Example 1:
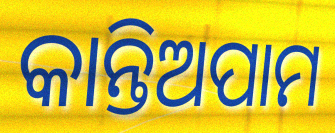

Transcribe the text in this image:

କାନ୍ତିଅପାମ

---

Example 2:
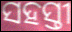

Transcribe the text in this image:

ସହସ୍ତୀ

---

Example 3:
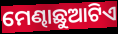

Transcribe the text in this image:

ମେଣ୍ଢାଛୁଆଟିଏ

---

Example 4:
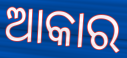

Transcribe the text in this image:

ଆକାର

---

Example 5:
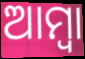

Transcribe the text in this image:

ଆମ୍ବା